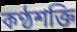
কণ্ঠশক্তি